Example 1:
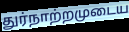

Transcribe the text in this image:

துர்நாற்றமுடைய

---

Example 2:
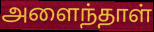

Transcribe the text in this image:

அளைந்தாள்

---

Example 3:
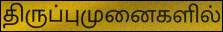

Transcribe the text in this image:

திருப்புமுனைகளில்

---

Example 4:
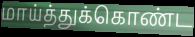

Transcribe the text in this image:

மாய்த்துக்கொண்ட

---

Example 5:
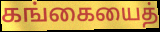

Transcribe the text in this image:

கங்கையைத்